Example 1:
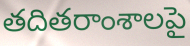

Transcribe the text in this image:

తదితరాంశాలపై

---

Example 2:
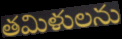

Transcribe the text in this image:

తమిళులను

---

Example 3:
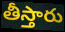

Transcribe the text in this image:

తీస్తారు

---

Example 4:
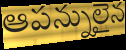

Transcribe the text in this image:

ఆపన్నులైన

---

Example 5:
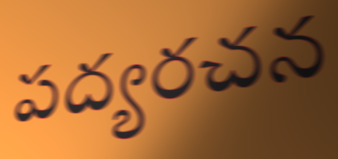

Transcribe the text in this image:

పద్యరచన